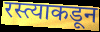
रस्त्याकडून